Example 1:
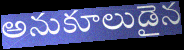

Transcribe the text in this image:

అనుకూలుడైన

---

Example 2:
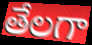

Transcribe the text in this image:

తేలగా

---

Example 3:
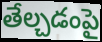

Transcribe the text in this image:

తేల్చడంపై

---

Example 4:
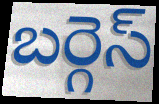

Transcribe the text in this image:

బర్గెస్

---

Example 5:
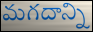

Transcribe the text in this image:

మగదాన్ని